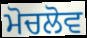
ਮੋਚਲੋਵ